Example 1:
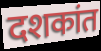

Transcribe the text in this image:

दशकांत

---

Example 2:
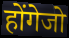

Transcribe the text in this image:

होंगेजो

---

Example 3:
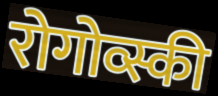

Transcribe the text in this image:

रोगोव्स्की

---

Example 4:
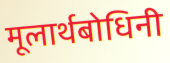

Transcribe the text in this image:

मूलार्थबोधिनी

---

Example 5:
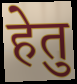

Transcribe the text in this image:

हेतु